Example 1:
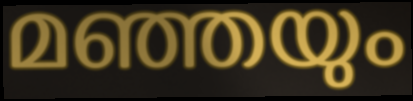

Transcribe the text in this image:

മഞ്ഞയും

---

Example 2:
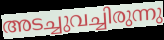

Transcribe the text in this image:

അടച്ചുവച്ചിരുന്നു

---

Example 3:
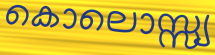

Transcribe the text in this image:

കൊലൊസ്സ്യ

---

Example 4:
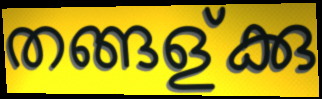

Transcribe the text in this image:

തങ്ങള്ക്കു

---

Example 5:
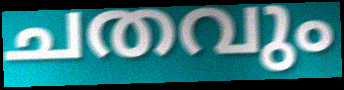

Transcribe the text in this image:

ചതവും